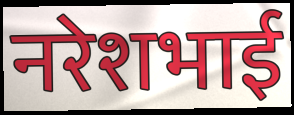
नरेशभाई